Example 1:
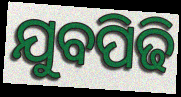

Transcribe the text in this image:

ଯୁବପିଢି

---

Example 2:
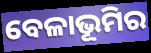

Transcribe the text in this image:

ବେଳାଭୂମିର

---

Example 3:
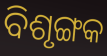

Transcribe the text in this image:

ବିଶୃଙ୍ଗକ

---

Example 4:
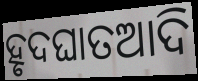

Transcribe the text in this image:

ହୃଦଘାତଆଦି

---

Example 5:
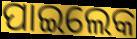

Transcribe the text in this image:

ପାଇଲେକ